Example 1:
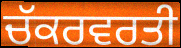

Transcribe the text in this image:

ਚੱਕਰਵਰਤੀ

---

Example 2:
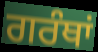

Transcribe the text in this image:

ਗਰੰਥਾਂ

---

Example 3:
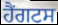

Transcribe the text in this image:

ਹੈਂਗਟਸ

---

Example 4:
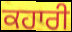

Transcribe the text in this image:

ਕਹਾਰੀ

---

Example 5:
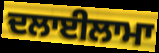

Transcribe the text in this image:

ਦਲਾਈਲਾਮਾ